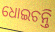
ଧୋଇଚନ୍ତି